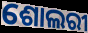
ଶୋଲରୀ